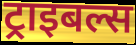
ट्राइबल्स